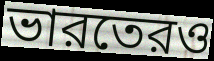
ভারতেরও